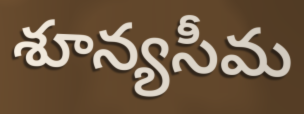
శూన్యసీమ